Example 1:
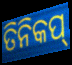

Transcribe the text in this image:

ତିନିକପ୍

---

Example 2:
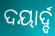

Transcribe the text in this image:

ଦୟାର୍ଦ୍ଦ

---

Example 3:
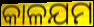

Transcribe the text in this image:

କାଳଯମ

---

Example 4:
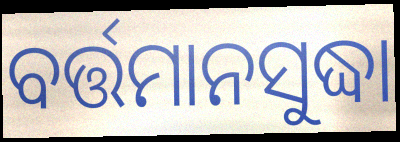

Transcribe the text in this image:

ବର୍ତ୍ତମାନସୁଦ୍ଧା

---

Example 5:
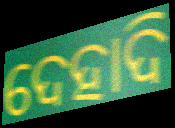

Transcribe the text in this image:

ଦେହାଦି